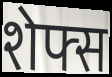
शेफ्स